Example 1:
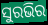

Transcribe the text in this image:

ସୁରଭିର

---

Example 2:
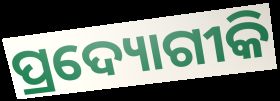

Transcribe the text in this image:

ପ୍ରଦ୍ୟୋଗୀକି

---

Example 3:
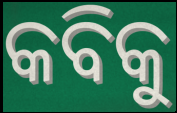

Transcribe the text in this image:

କବିକୁ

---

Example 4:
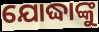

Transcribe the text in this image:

ଯୋଦ୍ଧାଙ୍କୁ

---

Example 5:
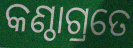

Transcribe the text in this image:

କଣ୍ଠାଗ୍ରତେ